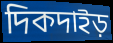
দিকদাইড়